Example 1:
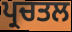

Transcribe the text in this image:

ਪ੍ਰਚਤਲ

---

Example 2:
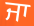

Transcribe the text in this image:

ਜਾ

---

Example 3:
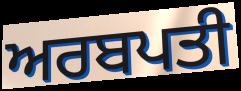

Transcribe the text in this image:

ਅਰਬਪਤੀ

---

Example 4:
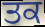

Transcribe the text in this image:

ਤਕ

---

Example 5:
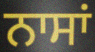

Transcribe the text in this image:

ਨਾਸਾਂ